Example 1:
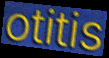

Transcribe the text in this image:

otitis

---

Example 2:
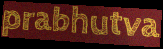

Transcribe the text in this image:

prabhutva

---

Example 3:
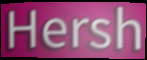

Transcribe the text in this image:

Hersh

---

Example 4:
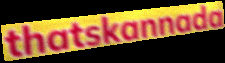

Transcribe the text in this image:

thatskannada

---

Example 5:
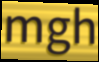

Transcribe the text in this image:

mgh